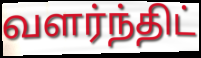
வளர்ந்திட்